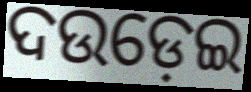
ଦଉଡ଼େଇ